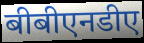
बीबीएनडीए